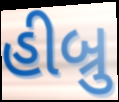
હીબ્રુ